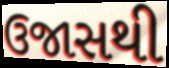
ઉજાસથી